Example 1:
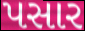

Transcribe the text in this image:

પસાર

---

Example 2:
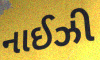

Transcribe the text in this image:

નાઈઝી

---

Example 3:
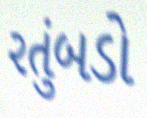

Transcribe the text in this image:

રતુંબડો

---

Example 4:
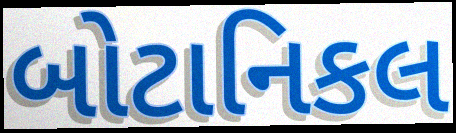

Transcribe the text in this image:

બોટાનિકલ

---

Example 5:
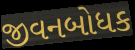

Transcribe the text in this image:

જીવનબોધક